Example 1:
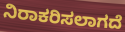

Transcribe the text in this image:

ನಿರಾಕರಿಸಲಾಗದೆ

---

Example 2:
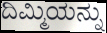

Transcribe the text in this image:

ದಿಮ್ಮಿಯನ್ನು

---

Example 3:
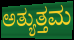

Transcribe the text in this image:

ಅತ್ಯುತ್ತಮ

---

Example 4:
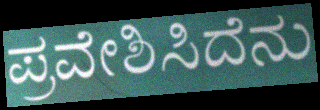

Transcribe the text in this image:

ಪ್ರವೇಶಿಸಿದೆನು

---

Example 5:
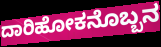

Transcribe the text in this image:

ದಾರಿಹೋಕನೊಬ್ಬನ